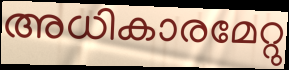
അധികാരമേറ്റു